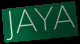
JAYA